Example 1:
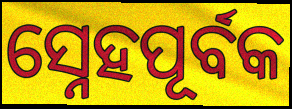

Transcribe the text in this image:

ସ୍ନେହପୂର୍ବକ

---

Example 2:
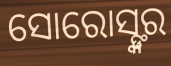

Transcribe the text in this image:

ସୋରୋସ୍ଙ୍କର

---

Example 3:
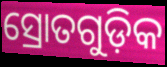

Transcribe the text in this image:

ସ୍ରୋତଗୁଡ଼ିକ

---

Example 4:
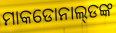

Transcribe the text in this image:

ମାକଡୋନାଲ୍‍ଡଙ୍କ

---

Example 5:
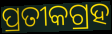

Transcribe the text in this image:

ପ୍ରତୀକଗ୍ରହ